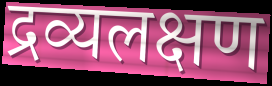
द्रव्यलक्षण